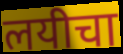
लयीचा